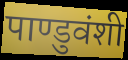
पाण्डुवंशी